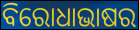
ବିରୋଧାଭାଷର